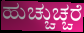
ಹುಚ್ಚುಚ್ಚರೆ